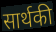
सार्थकी